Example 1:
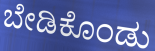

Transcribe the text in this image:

ಬೇಡಿಕೊಂಡು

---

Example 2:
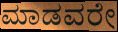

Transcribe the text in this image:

ಮಾಡವರೇ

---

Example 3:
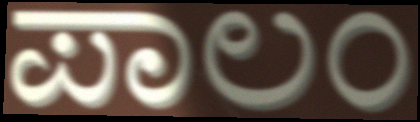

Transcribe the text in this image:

ಪಾಲಂ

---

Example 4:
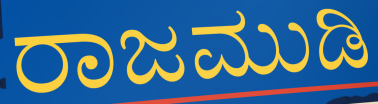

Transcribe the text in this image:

ರಾಜಮುಡಿ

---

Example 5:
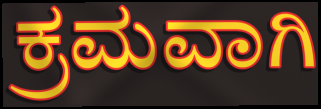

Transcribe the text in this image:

ಕ್ರಮವಾಗಿ